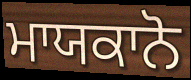
ਮਾਯਕਾਨੋ